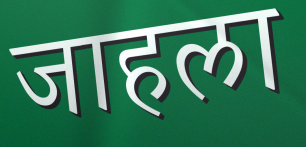
जाहला